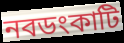
নবডংকাটি